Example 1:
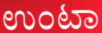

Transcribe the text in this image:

ಉಂಟಾ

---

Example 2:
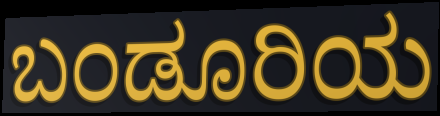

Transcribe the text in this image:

ಬಂಡೂರಿಯ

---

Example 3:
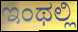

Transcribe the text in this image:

ಇಂಥಲ್ಲಿ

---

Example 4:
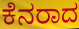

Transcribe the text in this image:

ಕೆನರಾದ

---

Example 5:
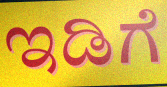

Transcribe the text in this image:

ಇಡಿಗೆ